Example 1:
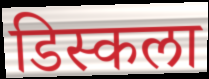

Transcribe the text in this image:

डिस्कला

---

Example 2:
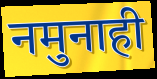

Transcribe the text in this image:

नमुनाही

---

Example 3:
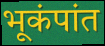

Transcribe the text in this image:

भूकंपांत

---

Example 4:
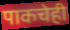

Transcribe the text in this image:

पाकचेही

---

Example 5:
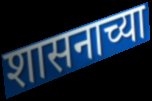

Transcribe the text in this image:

शासनाच्या